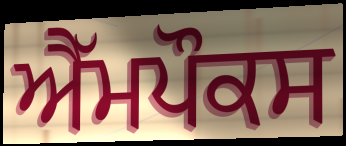
ਐੱਮਪੌਕਸ